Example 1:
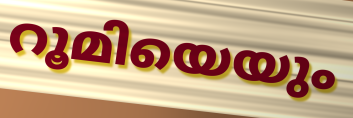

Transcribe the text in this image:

റൂമിയെയും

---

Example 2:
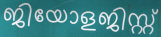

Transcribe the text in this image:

ജിയോളജിസ്റ്റ്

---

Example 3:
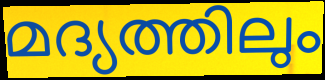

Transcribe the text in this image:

മദ്യത്തിലും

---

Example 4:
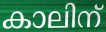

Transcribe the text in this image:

കാലിന്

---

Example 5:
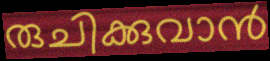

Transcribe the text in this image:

രുചിക്കുവാൻ